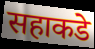
सहाकडे